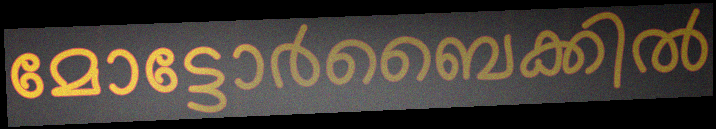
മോട്ടോർബൈക്കിൽ